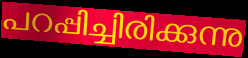
പറപ്പിച്ചിരിക്കുന്നു